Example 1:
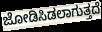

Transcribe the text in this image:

ಜೋಡಿಸಿಡಲಾಗುತ್ತದೆ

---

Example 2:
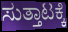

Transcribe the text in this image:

ಸುತ್ತಾಟಕ್ಕೆ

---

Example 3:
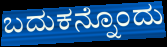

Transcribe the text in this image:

ಬದುಕನ್ನೊಂದು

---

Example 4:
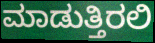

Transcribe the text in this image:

ಮಾಡುತ್ತಿರಲಿ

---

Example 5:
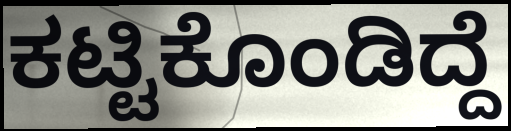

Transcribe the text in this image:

ಕಟ್ಟಿಕೊಂಡಿದ್ದೆ